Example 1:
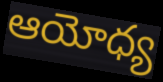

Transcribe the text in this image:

ఆయోధ్య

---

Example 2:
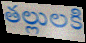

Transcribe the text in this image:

తల్లులకి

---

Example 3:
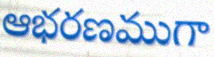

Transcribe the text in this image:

ఆభరణముగా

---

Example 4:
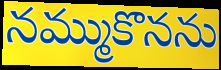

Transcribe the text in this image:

నమ్ముకొనను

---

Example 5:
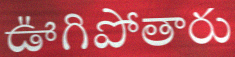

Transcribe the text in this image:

ఊగిపోతారు